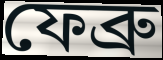
ফেব্রু